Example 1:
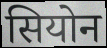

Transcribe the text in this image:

सियोन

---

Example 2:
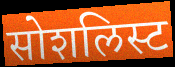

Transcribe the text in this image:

सोशलिस्ट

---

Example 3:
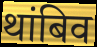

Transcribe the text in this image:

थांबिव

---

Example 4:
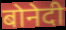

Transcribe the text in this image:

बोनेदी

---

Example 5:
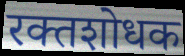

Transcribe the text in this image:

रक्तशोधक